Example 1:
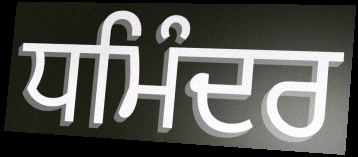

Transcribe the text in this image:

ਧਮਿੰਦਰ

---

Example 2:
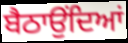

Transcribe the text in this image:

ਬੈਠਾਉਂਦਿਆਂ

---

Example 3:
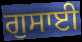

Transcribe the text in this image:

ਗੁਸਾਈ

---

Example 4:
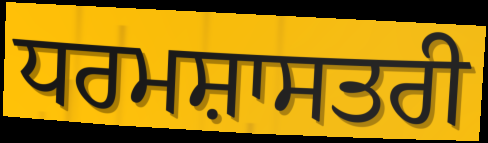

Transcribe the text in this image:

ਧਰਮਸ਼ਾਸਤਰੀ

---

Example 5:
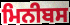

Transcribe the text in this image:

ਮਿਨੀਬਸ